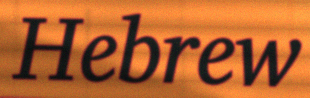
Hebrew